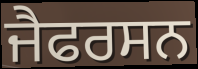
ਜੈਫਰਸਨ